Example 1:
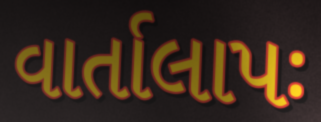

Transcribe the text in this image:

વાર્તાલાપઃ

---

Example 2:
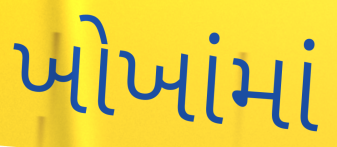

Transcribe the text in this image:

ખોખાંમાં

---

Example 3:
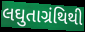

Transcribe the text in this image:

લઘુતાગ્રંથિથી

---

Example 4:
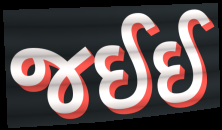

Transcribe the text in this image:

જઈઈ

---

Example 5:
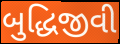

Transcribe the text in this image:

બુદ્ધિજીવી